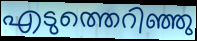
എടുത്തെറിഞ്ഞു